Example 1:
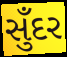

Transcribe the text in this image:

સુઁદર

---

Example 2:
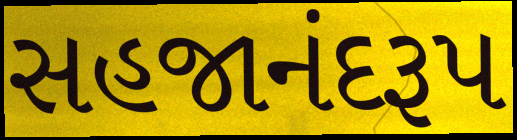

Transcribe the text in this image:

સહજાનંદરૂપ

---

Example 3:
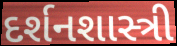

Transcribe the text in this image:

દર્શનશાસ્ત્રી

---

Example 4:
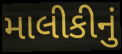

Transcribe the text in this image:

માલીકીનું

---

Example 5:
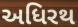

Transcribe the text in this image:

અધિરથ